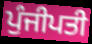
ਪੁੰਜੀਪਤੀ